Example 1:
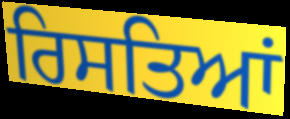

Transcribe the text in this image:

ਰਿਸਤਿਆਂ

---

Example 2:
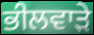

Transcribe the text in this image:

ਭੀਲਵਾੜੇ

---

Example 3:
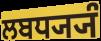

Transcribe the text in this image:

ਲਬਧ੍ਯ੍ਯੰ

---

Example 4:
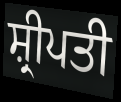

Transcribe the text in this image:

ਸ਼੍ਰੀਪਤੀ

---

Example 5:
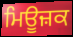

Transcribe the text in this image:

ਮਿਊਜ਼ਕ